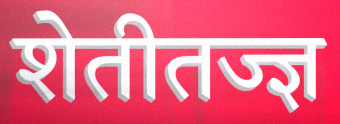
शेतीतज्ज्ञ